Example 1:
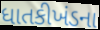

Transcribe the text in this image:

ધાતકીખંડના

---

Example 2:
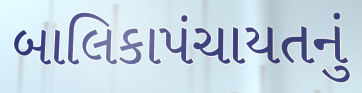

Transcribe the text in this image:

બાલિકાપંચાયતનું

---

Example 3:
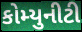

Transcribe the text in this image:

કોમ્યુનીટી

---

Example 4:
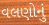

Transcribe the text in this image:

વલણોનું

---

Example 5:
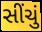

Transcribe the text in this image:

સીંચું